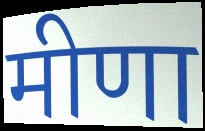
मीणा